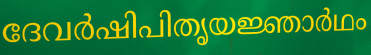
ദേവർഷിപിതൃയജ്ഞാർഥം